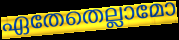
ഏതേതെല്ലാമോ